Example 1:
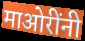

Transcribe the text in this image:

माओरींनी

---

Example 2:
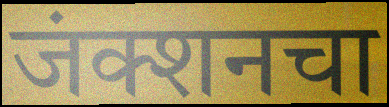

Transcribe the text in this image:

जंक्शनचा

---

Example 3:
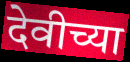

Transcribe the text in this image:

देवीच्या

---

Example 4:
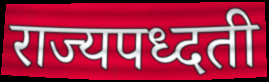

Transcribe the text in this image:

राज्यपध्दती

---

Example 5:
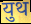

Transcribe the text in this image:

युथ